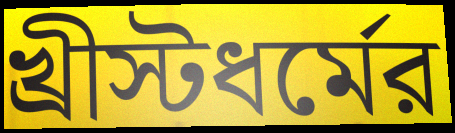
খ্রীস্টধর্মের